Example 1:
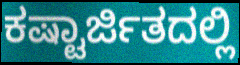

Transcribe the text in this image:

ಕಷ್ಟಾರ್ಜಿತದಲ್ಲಿ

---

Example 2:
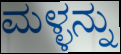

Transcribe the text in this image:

ಮಳ್ಳನ್ನು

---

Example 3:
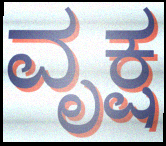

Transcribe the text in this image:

ವೃಕ್ಷ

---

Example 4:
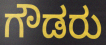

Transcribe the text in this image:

ಗೌಡರು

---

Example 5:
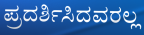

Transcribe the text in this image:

ಪ್ರದರ್ಶಿಸಿದವರಲ್ಲ